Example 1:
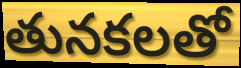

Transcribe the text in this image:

తునకలతో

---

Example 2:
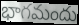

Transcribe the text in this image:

భాగమందు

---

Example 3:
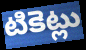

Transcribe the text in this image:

టికెట్లు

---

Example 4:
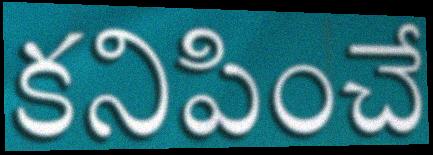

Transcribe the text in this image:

కనిపించే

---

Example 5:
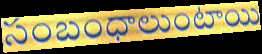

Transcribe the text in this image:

సంబంధాలుంటాయి